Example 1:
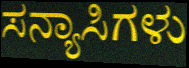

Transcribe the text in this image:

ಸನ್ಯಾಸಿಗಳು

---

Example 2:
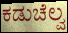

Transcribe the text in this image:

ಕಡುಚೆಲ್ವ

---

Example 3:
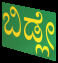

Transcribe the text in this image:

ಬಿಡ್ಲೇ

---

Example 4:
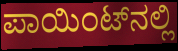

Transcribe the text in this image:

ಪಾಯಿಂಟ್‌ನಲ್ಲಿ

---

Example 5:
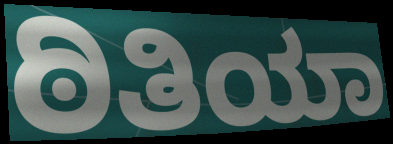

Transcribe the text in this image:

ಠಿತಿಯಾ